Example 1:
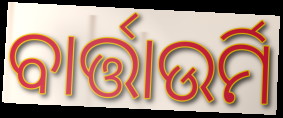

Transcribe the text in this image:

ବାର୍ତ୍ତାଉର୍ମି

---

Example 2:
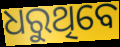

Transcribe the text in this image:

ଧରୁଥିବେ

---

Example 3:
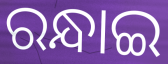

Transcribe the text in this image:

ରନ୍ଧାଇ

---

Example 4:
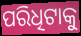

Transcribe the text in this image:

ପରିଧିଟାକୁ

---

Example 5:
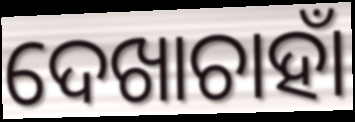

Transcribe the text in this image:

ଦେଖାଚାହାଁ